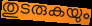
തുടരുകയും